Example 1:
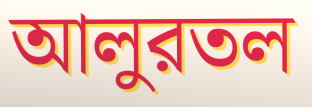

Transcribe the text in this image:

আলুরতল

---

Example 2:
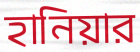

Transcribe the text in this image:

হানিয়ার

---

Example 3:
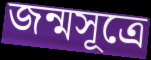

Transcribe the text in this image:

জন্মসূত্রে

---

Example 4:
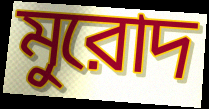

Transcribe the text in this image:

মুরোদ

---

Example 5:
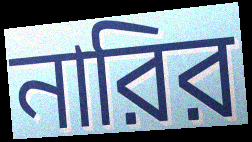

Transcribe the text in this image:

নারির